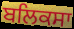
ਬਲਿਕਸਾ